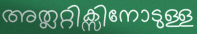
അത്ലറ്റിക്സിനോടുള്ള